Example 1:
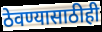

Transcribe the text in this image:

ठेवण्यासाठीही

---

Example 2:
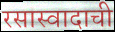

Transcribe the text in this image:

रसास्वादाची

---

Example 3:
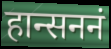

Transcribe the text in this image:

हान्सननं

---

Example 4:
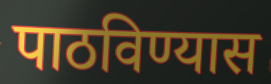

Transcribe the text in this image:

पाठविण्यास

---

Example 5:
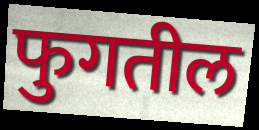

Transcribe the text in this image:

फुगतील